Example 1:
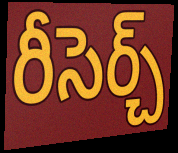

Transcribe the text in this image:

రీసెర్చ్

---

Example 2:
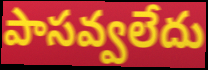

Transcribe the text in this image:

పాసవ్వలేదు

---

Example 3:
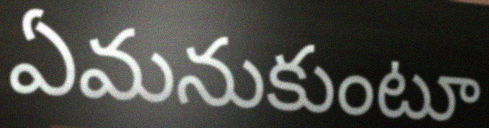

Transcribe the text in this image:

ఏమనుకుంటూ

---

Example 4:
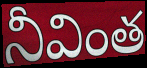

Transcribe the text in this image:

నీవింత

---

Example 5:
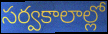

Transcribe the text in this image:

సర్వకాలాల్లో